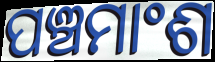
ପଞ୍ଚମାଂଶ